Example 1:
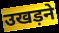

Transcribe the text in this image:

उखड़ने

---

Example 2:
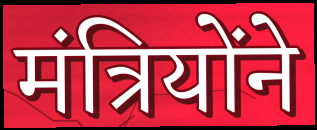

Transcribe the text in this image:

मंत्रियोंने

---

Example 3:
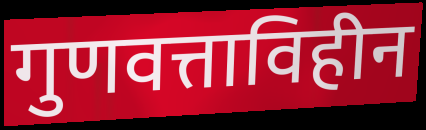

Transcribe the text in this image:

गुणवत्ताविहीन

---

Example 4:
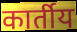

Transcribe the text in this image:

कार्तीय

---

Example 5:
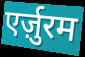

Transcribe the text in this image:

एर्ज़ुरम